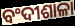
ବଂଦୀଶାଳା